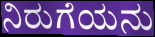
ನಿರುಗೆಯನು